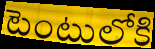
టెంటులోకి